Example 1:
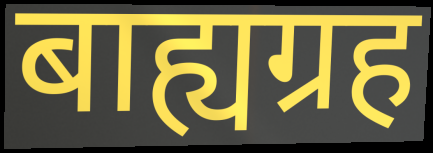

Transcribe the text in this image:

बाह्यग्रह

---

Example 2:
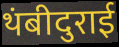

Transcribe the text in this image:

थंबीदुराई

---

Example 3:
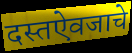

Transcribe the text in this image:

दस्तऐवजाचे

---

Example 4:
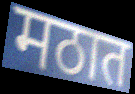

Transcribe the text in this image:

मठात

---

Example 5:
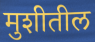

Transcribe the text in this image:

मुशीतील